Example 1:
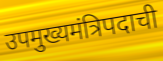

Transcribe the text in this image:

उपमुख्यमंत्रिपदाची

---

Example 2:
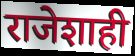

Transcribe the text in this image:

राजेशाही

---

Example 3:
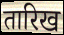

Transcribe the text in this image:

तारिख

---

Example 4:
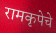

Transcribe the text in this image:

रामकृपेचे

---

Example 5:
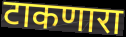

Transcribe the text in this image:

टाकणारा